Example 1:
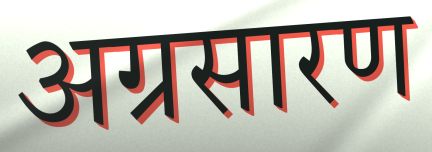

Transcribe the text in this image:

अग्रसारण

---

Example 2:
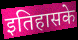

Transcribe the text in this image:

इतिहासके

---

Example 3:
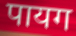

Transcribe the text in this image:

पायग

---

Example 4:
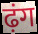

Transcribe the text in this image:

ढ़ंग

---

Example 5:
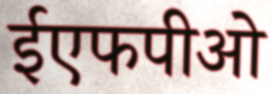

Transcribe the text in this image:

ईएफपीओ